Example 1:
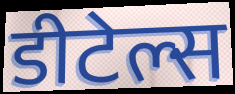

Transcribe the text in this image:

डीटेल्‍स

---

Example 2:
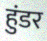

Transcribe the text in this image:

हुंडर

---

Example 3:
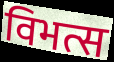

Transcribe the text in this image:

विभत्स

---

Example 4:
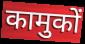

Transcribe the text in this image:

कामुकों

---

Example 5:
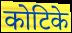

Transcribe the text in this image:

कोटिके